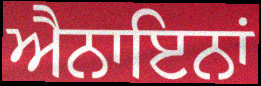
ਐਨਾਇਨਾਂ